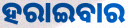
ହରାଇବାର